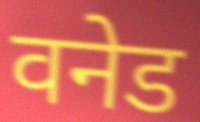
वनेड